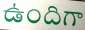
ఉందిగా